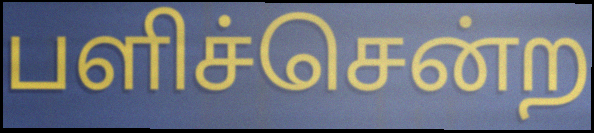
பளிச்சென்ற